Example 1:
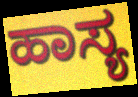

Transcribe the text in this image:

ಹಾಸ್ಯ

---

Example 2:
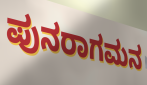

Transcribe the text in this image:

ಪುನರಾಗಮನ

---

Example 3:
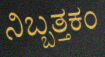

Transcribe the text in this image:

ನಿಬ್ಬತ್ತಕಂ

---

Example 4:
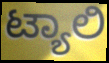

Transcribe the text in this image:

ಟ್ಯಾಲಿ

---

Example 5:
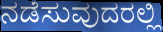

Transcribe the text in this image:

ನಡೆಸುವುದರಲ್ಲಿ